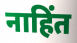
नाहिंत